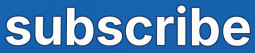
subscribe